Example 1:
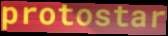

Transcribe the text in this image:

protostar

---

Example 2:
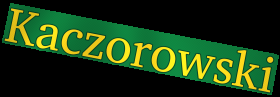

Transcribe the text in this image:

Kaczorowski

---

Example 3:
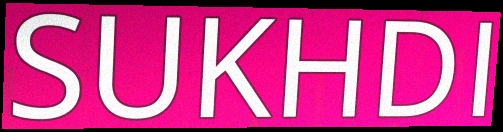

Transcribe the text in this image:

SUKHDI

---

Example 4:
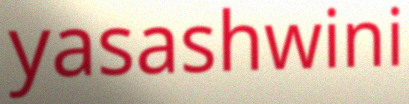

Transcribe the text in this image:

yasashwini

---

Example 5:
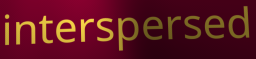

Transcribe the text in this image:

interspersed